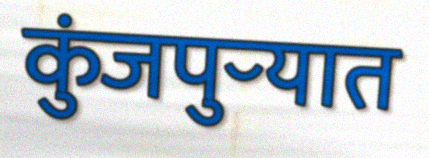
कुंजपुऱ्यात